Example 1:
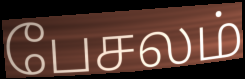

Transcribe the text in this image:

பேசலம்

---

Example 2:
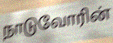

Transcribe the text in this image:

நாடுவோரின்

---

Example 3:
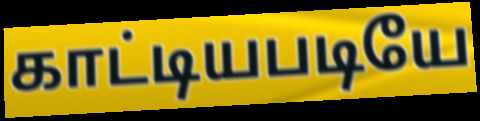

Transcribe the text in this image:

காட்டியபடியே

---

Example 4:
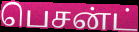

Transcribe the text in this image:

பெசன்ட்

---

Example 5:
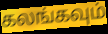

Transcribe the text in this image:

கலங்கவும்